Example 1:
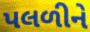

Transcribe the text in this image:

પલળીને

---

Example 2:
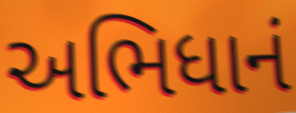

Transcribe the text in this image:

અભિધાનં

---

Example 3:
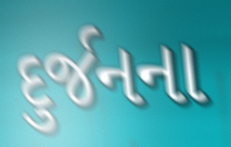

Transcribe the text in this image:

દુર્જનના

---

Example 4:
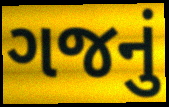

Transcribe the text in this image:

ગજનું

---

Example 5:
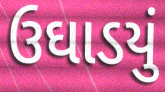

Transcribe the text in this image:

ઉઘાડયું